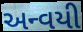
અન્વયી